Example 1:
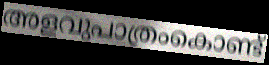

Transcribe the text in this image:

അളവുപാത്രംകൊണ്ട്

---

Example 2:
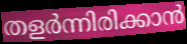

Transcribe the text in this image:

തളർന്നിരിക്കാൻ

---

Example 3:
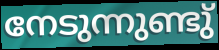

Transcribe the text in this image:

നേടുന്നുണ്ടു്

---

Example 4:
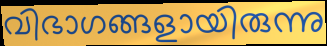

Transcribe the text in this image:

വിഭാഗങ്ങളായിരുന്നു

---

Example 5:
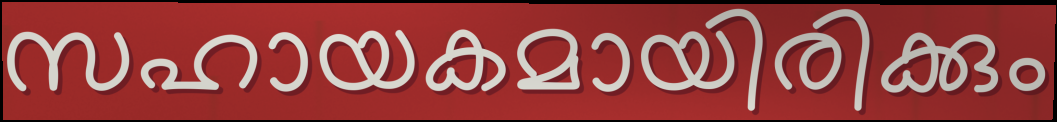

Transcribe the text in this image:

സഹായകമായിരിക്കും